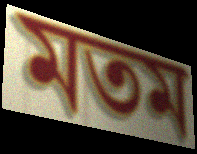
মতম